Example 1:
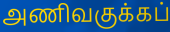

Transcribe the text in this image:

அணிவகுக்கப்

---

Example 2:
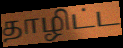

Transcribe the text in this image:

தாழிட்ட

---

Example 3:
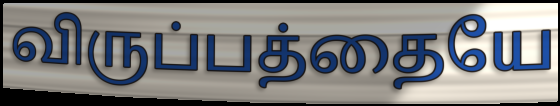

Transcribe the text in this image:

விருப்பத்தையே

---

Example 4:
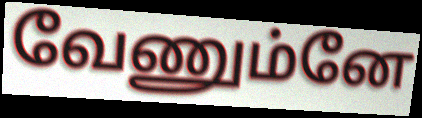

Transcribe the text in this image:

வேணும்னே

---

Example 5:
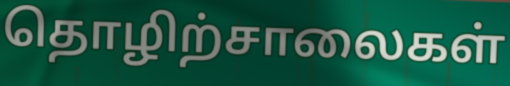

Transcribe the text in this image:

தொழிற்சாலைகள்